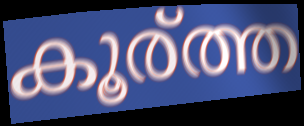
കൂര്ത്ത